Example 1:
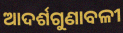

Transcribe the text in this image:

ଆଦର୍ଶଗୁଣାବଳୀ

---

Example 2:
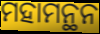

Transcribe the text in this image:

ମହାମନ୍ଥନ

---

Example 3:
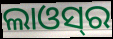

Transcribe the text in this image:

ଲାଓସ୍‌ର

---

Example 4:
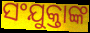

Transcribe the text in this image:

ସଂଯୁକ୍ତାଙ୍କ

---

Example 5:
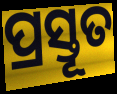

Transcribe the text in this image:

ପ୍ରସ୍ତୂତ